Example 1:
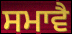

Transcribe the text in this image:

ਸਮਾਵੈ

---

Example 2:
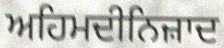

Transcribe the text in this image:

ਅਹਿਮਦੀਨਿਜ਼ਾਦ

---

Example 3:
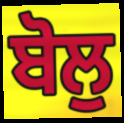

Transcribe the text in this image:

ਬੋਲੁ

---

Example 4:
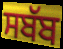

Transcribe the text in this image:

ਸਬੱਬ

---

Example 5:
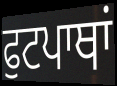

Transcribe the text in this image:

ਫੁਟਪਾਥਾਂ